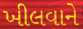
ખીલવાને